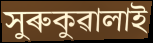
সুৰুকুৱালাই